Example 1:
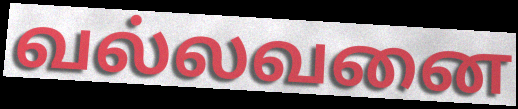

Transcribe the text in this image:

வல்லவனை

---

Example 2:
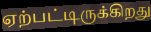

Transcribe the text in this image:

ஏற்பட்டிருக்கிறது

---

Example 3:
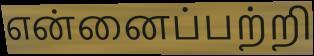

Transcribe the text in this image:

என்னைப்பற்றி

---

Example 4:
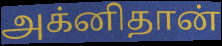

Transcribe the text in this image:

அக்னிதான்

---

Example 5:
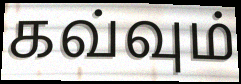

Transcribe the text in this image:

கவ்வும்